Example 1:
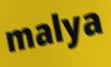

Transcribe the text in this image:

malya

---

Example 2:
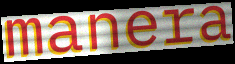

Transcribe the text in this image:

manera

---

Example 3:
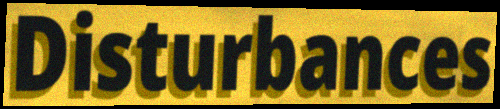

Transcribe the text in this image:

Disturbances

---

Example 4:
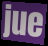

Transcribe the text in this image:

jue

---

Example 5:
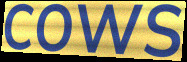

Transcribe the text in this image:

cows